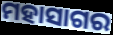
ମହାସାଗର